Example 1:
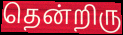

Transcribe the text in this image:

தென்றிரு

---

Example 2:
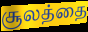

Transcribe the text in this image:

சூலத்தை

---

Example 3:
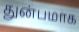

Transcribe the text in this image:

துன்பமாக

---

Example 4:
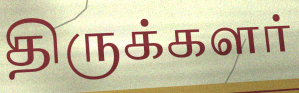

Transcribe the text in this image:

திருக்களர்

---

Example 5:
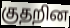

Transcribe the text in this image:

குதறின